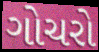
ગોચરો